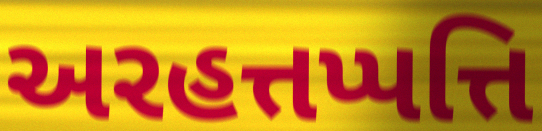
અરહત્તપ્પત્તિ